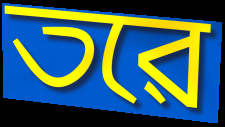
তৱে